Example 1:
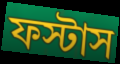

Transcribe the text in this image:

ফস্টাস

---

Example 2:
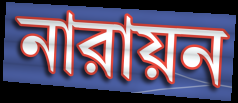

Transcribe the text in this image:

নারায়ন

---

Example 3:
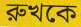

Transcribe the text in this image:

রুখকে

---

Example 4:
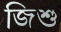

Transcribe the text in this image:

জিশু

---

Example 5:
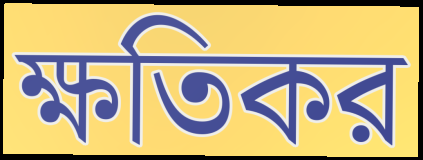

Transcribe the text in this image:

ক্ষতিকর